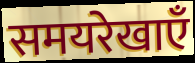
समयरेखाएँ